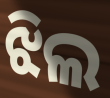
ଝିଲ